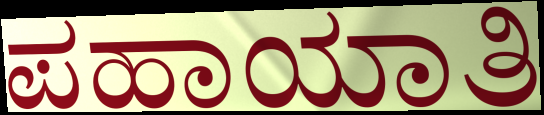
ಪಹಾಯಾತಿ